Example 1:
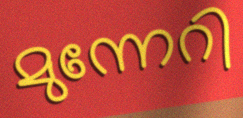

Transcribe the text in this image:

മുന്നേറി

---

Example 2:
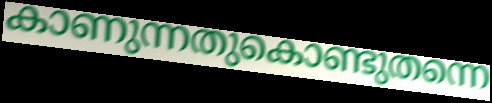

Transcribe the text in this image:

കാണുന്നതുകൊണ്ടുതന്നെ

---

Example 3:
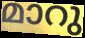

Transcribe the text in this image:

മാറു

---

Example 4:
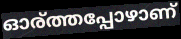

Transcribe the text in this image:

ഓര്ത്തപ്പോഴാണ്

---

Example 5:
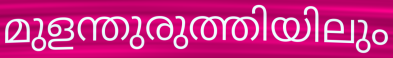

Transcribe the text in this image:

മുളന്തുരുത്തിയിലും